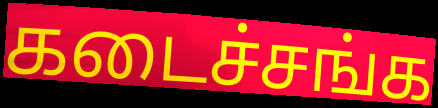
கடைச்சங்க